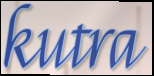
kutra